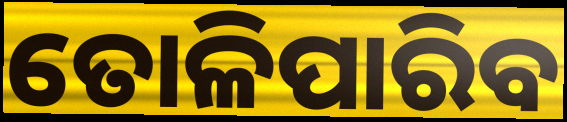
ତୋଳିପାରିବ